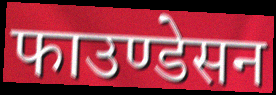
फाउण्डेसन